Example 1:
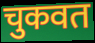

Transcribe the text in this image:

चुकवत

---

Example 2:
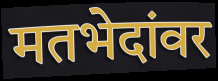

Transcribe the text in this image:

मतभेदांवर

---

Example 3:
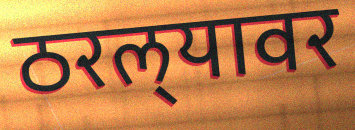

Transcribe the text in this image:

ठरल्यावर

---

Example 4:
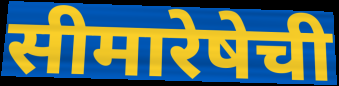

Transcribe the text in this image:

सीमारेषेची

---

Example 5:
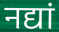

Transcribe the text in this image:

नद्यां